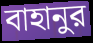
বাহানুর